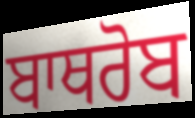
ਬਾਥਰੋਬ